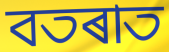
বতৰাত